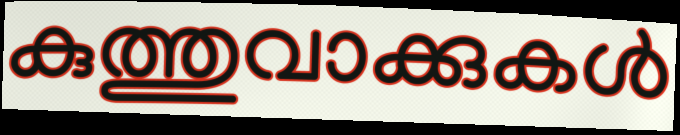
കുത്തുവാക്കുകൾ